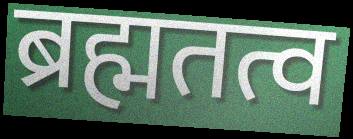
ब्रह्मतत्व